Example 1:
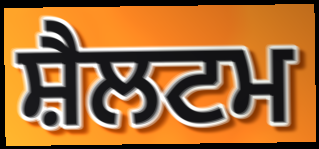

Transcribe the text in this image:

ਸ਼ੈਲਟਮ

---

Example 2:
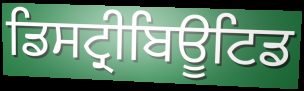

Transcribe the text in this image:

ਡਿਸਟ੍ਰੀਬਿਊਟਿਡ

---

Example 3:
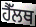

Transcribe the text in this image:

ਹੈੱਲਥ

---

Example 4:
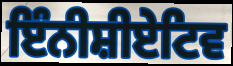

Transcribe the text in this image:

ਇੰਨੀਸ਼ੀਏਟਿਵ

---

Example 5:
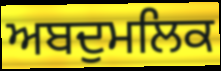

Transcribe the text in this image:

ਅਬਦੁਮਲਿਕ